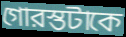
গোরস্তটাকে